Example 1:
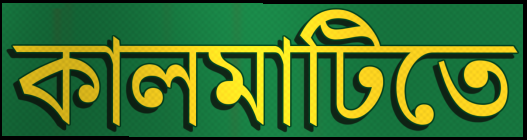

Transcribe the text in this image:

কালমাটিতে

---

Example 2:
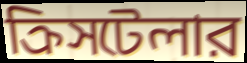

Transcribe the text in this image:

ক্রিসটেলার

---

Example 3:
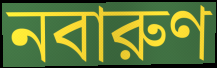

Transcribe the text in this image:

নবারুণ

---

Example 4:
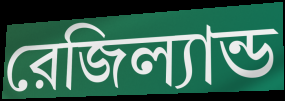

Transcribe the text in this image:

রেজিল্যান্ড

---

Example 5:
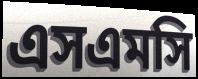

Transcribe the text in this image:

এসএমসি